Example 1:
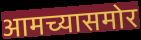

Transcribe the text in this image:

आमच्यासमोर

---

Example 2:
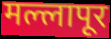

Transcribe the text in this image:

मल्लापूर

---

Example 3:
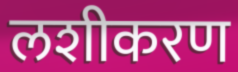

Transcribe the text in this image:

लशीकरण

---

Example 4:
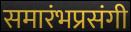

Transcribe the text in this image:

समारंभप्रसंगी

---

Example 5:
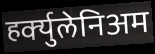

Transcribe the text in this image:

हर्क्युलेनिअम